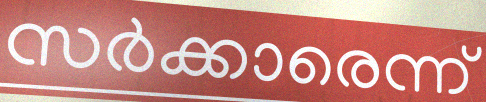
സർക്കാരെന്ന്